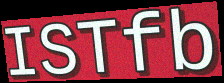
ISTfb